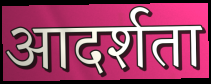
आदर्शता